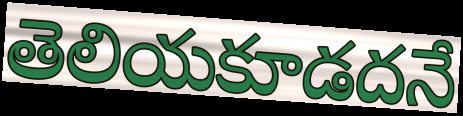
తెలియకూడదనే